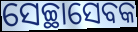
ସେଚ୍ଛାସେବକ